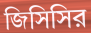
জিসিসির